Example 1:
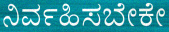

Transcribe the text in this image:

ನಿರ್ವಹಿಸಬೇಕೇ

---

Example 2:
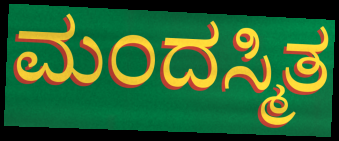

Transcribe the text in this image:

ಮಂದಸ್ಮಿತ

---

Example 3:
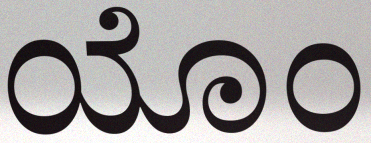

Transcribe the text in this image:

ಯೊಂ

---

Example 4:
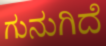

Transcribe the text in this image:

ಗುನುಗಿದೆ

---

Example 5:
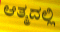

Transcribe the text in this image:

ಆತ್ಮದಲ್ಲಿ